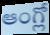
ఆంగ్లో